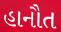
હાનૌત